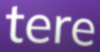
tere